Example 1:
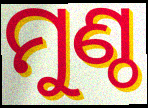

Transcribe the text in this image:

ମୁଣ୍ଠ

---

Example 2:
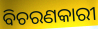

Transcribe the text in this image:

ବିଚରଣକାରୀ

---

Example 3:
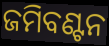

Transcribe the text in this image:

ଜମିବଣ୍ଟନ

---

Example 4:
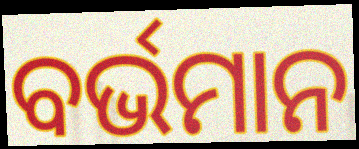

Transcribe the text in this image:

ବର୍ଭମାନ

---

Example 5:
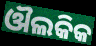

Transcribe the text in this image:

ଔଲକିକ